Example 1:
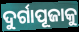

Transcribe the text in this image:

ଦୁର୍ଗାପୂଜାକୁ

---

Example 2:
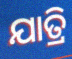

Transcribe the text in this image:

ଯାତ୍ରି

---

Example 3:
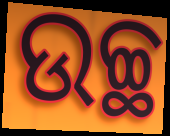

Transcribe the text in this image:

ଉଚ୍ଛ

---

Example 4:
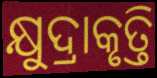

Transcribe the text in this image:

କ୍ଷୁଦ୍ରାକୃତ୍ତି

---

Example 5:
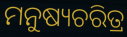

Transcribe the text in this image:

ମନୁଷ୍ୟଚରିତ୍ର